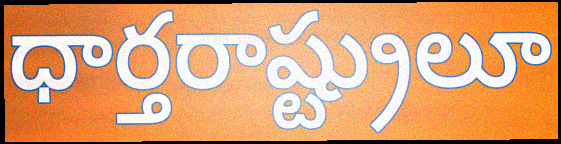
ధార్తరాష్ట్రులూ